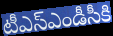
టీఎస్ఎండీసీకి